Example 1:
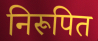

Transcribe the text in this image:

निरूपित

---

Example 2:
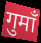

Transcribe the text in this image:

गुमाँ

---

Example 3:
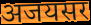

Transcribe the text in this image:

अजयसर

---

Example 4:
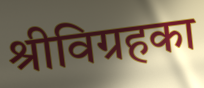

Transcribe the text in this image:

श्रीविग्रहका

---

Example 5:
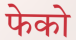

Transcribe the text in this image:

फेको